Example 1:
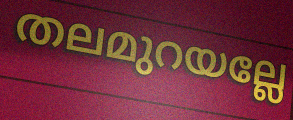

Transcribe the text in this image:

തലമുറയല്ലേ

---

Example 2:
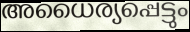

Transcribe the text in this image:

അധൈര്യപ്പെട്ടും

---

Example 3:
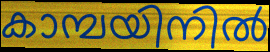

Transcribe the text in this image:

കാമ്പയിനിൽ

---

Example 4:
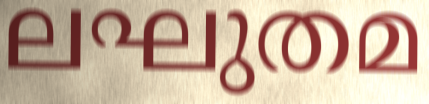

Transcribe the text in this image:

ലഘുതമ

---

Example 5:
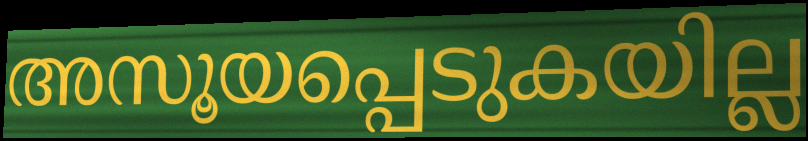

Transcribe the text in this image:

അസൂയപ്പെടുകയില്ല